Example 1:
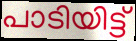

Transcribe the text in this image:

പാടിയിട്ട്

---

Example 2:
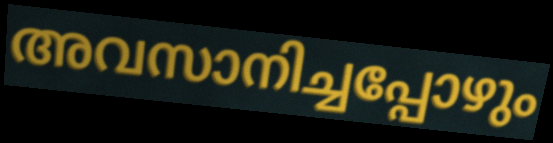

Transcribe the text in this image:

അവസാനിച്ചപ്പോഴും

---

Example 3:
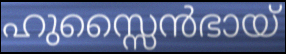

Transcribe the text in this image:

ഹുസ്സൈൻഭായ്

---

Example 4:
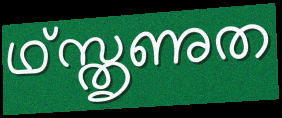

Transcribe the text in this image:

ഥ്സ്തൃണുത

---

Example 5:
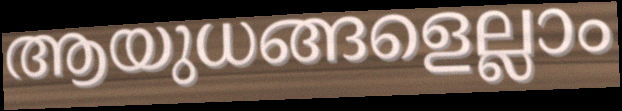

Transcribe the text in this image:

ആയുധങ്ങളെല്ലാം